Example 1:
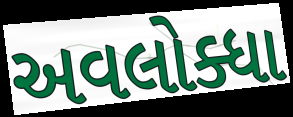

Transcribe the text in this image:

અવલોક્ધા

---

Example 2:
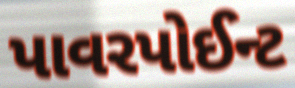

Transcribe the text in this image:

પાવરપોઈન્ટ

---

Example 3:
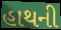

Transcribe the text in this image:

હાથની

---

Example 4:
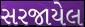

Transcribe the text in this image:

સરજાયેલ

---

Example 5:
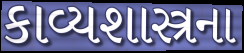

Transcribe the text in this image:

કાવ્યશાસ્ત્રના